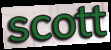
scott